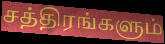
சத்திரங்களும்